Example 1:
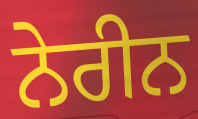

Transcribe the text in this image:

ਨੇਰੀਨ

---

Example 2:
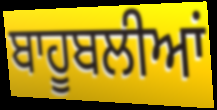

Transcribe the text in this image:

ਬਾਹੂਬਲੀਆਂ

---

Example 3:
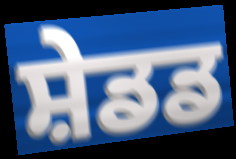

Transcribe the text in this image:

ਸ਼ੇਡਡ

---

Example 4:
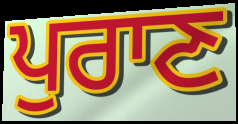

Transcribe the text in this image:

ਪੁਰਾਣ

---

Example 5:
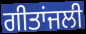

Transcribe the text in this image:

ਗੀਤਾਂਜਲੀ